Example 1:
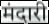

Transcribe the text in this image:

मंदारी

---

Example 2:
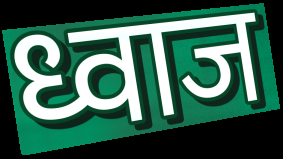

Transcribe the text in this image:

ध्वाज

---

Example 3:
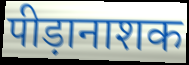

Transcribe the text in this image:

पीड़ानाशक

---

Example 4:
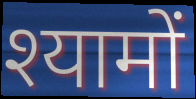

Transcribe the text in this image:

श्यामों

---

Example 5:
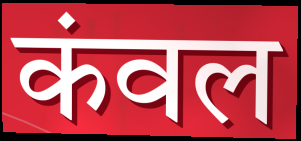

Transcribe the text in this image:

कंवल